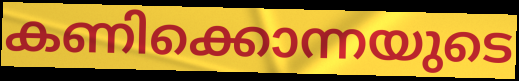
കണിക്കൊന്നയുടെ